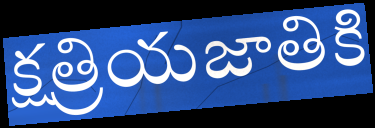
క్షత్రియజాతికి